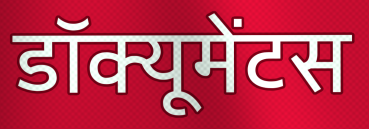
डॉक्यूमेंटस